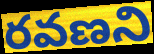
రవణని